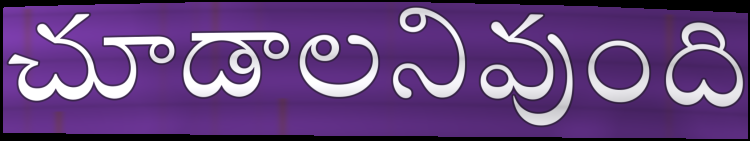
చూడాలనివుంది